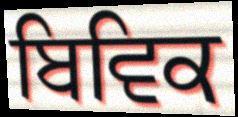
ਬਿਵਿਕ